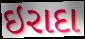
ઇરાદા